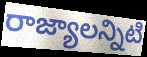
రాజ్యాలన్నిటి